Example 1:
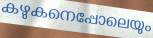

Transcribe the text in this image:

കഴുകനെപ്പോലെയും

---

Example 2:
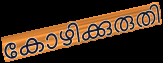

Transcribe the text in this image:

കോഴിക്കുരുതി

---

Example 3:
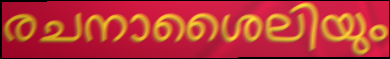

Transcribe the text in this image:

രചനാശൈലിയും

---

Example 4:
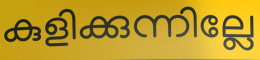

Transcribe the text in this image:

കുളിക്കുന്നില്ലേ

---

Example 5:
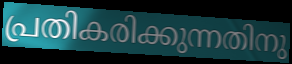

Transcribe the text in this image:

പ്രതികരിക്കുന്നതിനു